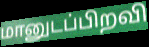
மானுடப்பிறவி